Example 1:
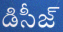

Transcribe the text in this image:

డిసీజ్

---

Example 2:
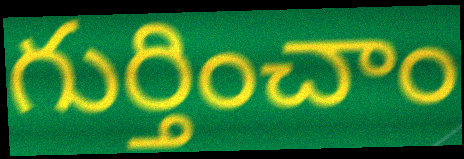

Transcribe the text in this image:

గుర్తించాం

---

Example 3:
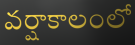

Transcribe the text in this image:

వర్షాకాలంలో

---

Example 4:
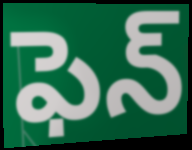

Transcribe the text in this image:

ఫెన్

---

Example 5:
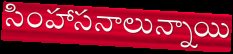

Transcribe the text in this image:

సింహాసనాలున్నాయి